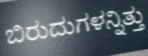
ಬಿರುದುಗಳನ್ನಿತ್ತು